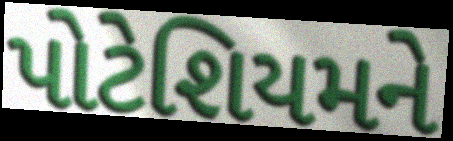
પોટેશિયમને